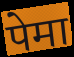
पेमा